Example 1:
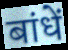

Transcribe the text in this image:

बांधें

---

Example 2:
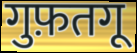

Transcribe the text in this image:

गुफ़तगू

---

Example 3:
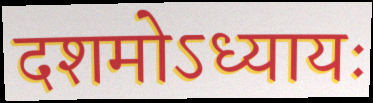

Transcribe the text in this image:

दशमोऽध्यायः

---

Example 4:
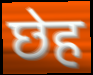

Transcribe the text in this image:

छेह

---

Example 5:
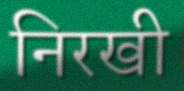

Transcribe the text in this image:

निरखी